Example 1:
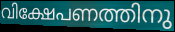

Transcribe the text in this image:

വിക്ഷേപണത്തിനു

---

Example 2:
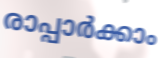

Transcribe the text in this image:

രാപ്പാർക്കാം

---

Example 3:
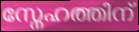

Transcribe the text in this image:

സ്നേഹത്തിന്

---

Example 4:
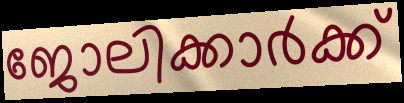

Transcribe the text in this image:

ജോലിക്കാർക്ക്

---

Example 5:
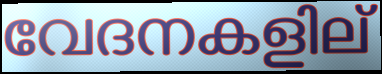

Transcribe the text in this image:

വേദനകളില്